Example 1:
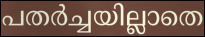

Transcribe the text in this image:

പതർച്ചയില്ലാതെ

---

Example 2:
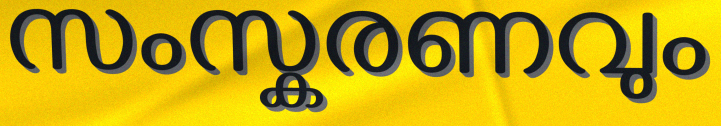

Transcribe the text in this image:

സംസ്കരണവും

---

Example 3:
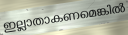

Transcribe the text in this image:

ഇല്ലാതാകണമെങ്കിൽ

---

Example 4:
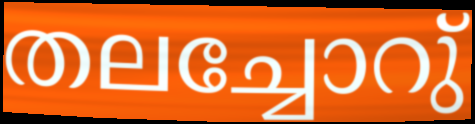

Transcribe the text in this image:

തലച്ചോറു്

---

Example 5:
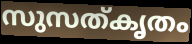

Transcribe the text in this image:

സുസത്കൃതം